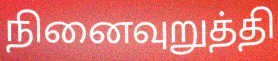
நினைவுறுத்தி